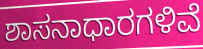
ಶಾಸನಾಧಾರಗಳಿವೆ